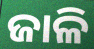
ଜାଳି